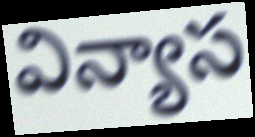
విన్యాస